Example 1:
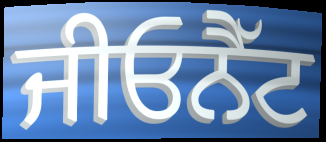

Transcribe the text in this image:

ਜੀਓਨੈੱਟ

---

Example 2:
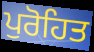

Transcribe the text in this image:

ਪੁਰੋਹਿਤ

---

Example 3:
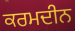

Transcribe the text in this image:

ਕਰਮਦੀਨ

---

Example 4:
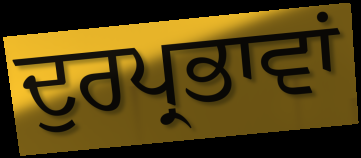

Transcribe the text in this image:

ਦੁਰਪ੍ਰਭਾਵਾਂ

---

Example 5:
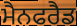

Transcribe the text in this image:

ਮੈਨਫਰੈਡ